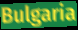
Bulgaria